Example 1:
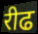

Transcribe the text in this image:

रीढ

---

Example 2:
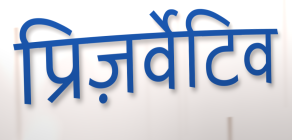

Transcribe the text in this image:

प्रिज़र्वेटिव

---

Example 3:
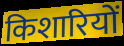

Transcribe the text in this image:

किशारियों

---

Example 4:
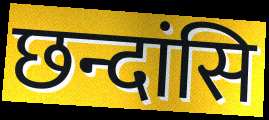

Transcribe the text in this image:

छन्दांसि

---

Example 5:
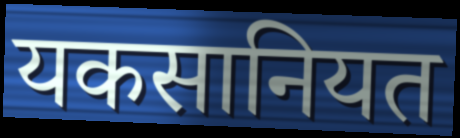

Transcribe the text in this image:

यकसानियत